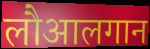
लौआलगान